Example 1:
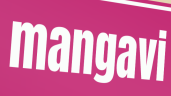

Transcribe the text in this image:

mangavi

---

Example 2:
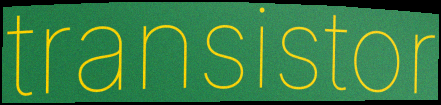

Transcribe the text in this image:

transistor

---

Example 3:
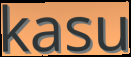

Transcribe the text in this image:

kasu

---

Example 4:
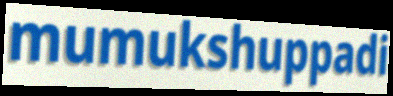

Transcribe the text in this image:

mumukshuppadi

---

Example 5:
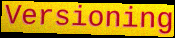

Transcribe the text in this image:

Versioning